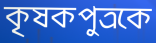
কৃষকপুত্রকে